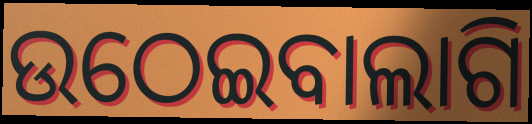
ଉଠେଇବାଲାଗି